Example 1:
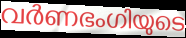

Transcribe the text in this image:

വർണഭംഗിയുടെ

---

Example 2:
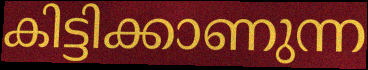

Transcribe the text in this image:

കിട്ടിക്കാണുന്ന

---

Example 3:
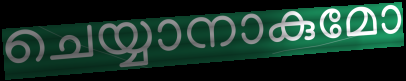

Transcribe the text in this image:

ചെയ്യാനാകുമോ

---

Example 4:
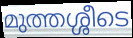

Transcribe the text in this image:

മുത്തശ്ശീടെ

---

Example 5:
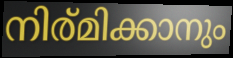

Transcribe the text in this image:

നിര്മിക്കാനും